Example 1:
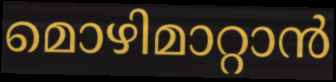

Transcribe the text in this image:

മൊഴിമാറ്റാൻ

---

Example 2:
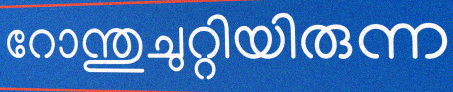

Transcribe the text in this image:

റോന്തുചുറ്റിയിരുന്ന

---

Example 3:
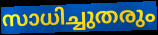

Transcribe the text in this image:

സാധിച്ചുതരും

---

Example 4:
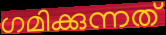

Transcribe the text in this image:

ഗമിക്കുന്നത്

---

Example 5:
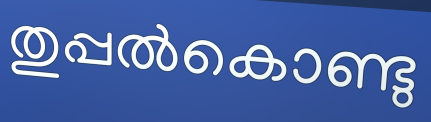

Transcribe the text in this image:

തുപ്പൽകൊണ്ടു